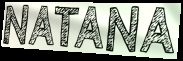
NATANA